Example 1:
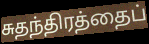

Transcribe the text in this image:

சுதந்திரத்தைப்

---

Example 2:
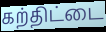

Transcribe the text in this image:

கற்திட்டை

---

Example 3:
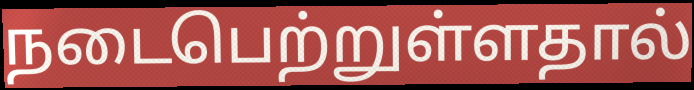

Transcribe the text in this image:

நடைபெற்றுள்ளதால்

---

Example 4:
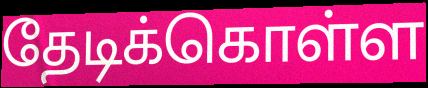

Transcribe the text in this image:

தேடிக்கொள்ள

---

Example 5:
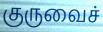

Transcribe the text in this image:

குருவைச்